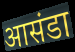
आसंडा